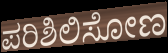
ಪರಿಶಿಲಿಸೋಣ